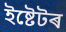
ইষ্টেটৰ